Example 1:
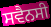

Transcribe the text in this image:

ਸਵੈਨਸੀ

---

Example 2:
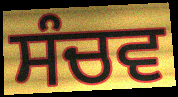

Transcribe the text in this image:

ਸੰਚਵ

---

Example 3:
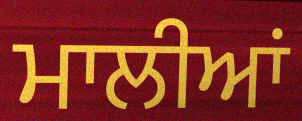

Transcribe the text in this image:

ਮਾਲੀਆਂ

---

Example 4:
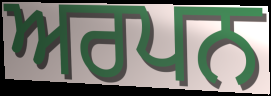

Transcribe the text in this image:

ਅਰਪਨ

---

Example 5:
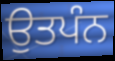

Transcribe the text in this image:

ਉਤਪੰਨ